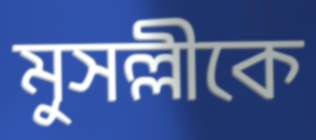
মুসল্লীকে